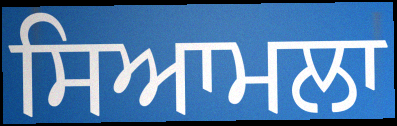
ਸਿਆਮਲਾ